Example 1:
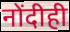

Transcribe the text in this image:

नोंदीही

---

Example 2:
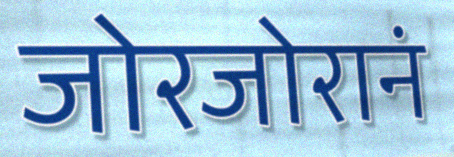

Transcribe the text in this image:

जोरजोरानं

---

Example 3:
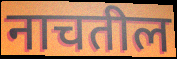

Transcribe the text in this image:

नाचतील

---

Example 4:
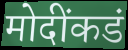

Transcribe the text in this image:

मोदींकडं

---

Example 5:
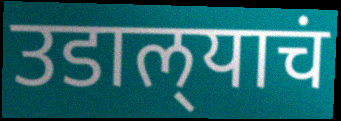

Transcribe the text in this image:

उडाल्याचं